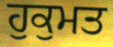
ਹੁਕੁਮਤ